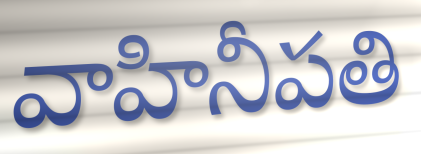
వాహినీపతి